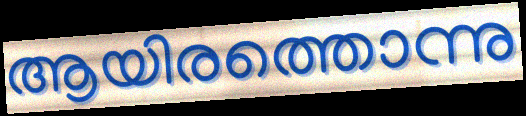
ആയിരത്തൊന്നു